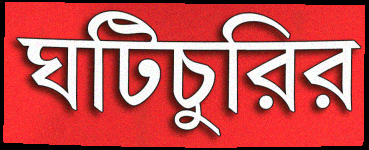
ঘটিচুরির